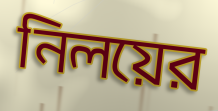
নিলয়ের